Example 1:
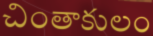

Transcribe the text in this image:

చింతాకులం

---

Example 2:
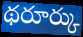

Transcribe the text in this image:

థరూర్కు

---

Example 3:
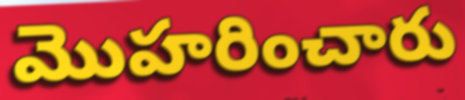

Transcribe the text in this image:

మొహరించారు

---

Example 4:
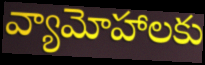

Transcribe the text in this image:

వ్యామోహాలకు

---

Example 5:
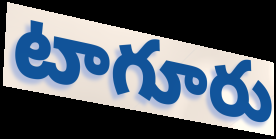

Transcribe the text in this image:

టాగూరు